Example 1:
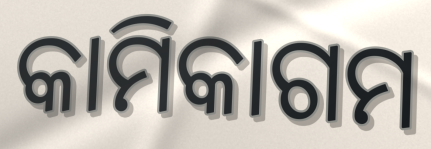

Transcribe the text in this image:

କାମିକାଗମ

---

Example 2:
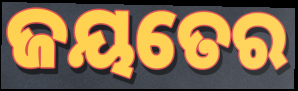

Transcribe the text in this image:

ଜୟତେର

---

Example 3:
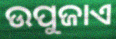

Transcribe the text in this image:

ଉପୁଜାଏ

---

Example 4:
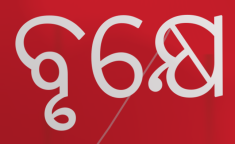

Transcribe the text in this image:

ବୃକ୍ଷେ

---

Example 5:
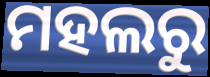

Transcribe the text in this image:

ମହଲରୁ